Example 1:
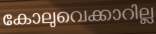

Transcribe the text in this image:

കോലുവെക്കാറില്ല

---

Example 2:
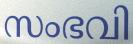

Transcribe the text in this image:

സംഭവി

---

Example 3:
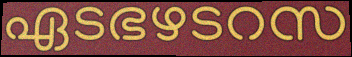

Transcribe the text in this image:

ഏടഭഴടറസ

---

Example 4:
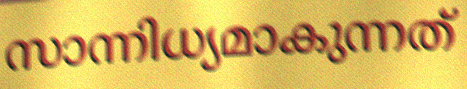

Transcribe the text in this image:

സാന്നിധ്യമാകുന്നത്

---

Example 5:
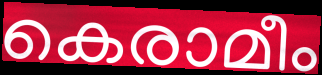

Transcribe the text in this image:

കെരാമീം